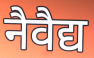
नैवैद्य